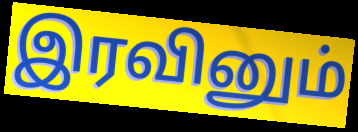
இரவினும்